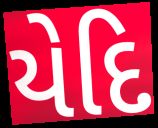
યેદિ